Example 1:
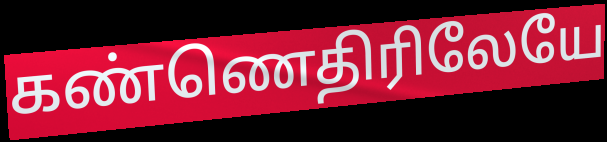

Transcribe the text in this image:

கண்ணெதிரிலேயே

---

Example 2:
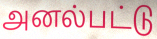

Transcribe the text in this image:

அனல்பட்டு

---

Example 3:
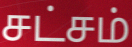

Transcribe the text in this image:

சட்சம்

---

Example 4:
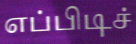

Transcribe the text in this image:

எப்பிடிச்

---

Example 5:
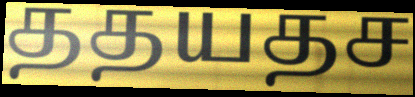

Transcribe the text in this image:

ததயதச